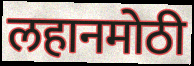
लहानमोठी